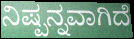
ನಿಷ್ಪನ್ನವಾಗಿದೆ